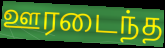
ஊரடைந்த